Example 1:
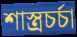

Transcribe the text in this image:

শাস্ত্রচর্চা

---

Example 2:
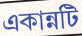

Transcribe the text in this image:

একান্নটি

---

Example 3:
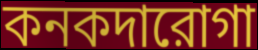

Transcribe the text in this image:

কনকদারোগা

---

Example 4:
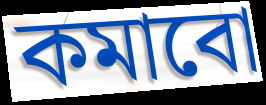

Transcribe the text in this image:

কমাবো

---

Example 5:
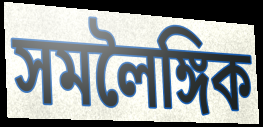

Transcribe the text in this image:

সমলৈঙ্গিক